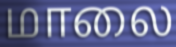
மாலை